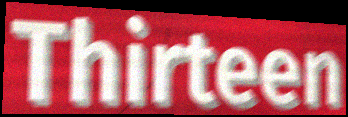
Thirteen